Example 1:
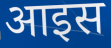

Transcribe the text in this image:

आइस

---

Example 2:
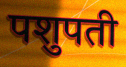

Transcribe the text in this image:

पशुपती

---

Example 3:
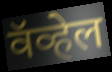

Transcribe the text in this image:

वॅव्हेल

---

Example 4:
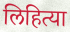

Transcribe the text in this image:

लिहित्या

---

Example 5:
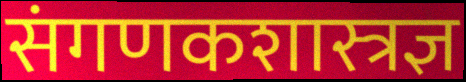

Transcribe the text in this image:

संगणकशास्त्रज्ञ